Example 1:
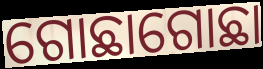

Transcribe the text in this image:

ଗୋଛାଗୋଛା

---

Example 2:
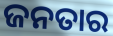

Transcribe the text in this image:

ଜନତାର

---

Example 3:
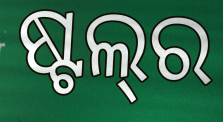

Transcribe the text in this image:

ଷ୍ଟଲ୍‌ର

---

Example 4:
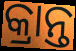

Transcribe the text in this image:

କ୍ରାନ୍ତ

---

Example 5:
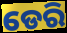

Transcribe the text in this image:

ଡେରି